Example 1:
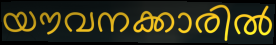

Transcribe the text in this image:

യൗവനക്കാരിൽ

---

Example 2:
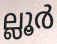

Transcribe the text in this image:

ല്ലൂർ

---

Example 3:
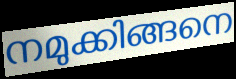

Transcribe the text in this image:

നമുക്കിങ്ങനെ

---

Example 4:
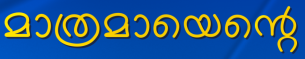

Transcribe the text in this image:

മാത്രമായെന്റെ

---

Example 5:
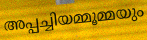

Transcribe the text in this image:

അപ്പച്ചിയമ്മൂമ്മയും